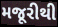
મજૂરીથી